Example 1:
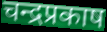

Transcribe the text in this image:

चन्द्रप्रकाष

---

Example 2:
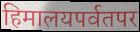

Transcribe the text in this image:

हिमालयपर्वतपर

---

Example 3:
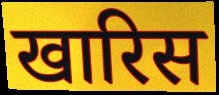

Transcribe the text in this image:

खारिस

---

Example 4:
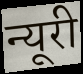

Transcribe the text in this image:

न्यूरी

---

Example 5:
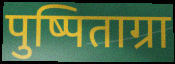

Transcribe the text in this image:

पुष्पिताग्रा